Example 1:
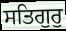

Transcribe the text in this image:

ਸਤਿਗੁਰੁ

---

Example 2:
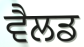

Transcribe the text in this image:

ਵੈਲਡ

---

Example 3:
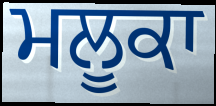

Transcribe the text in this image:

ਮਲੂਕਾ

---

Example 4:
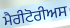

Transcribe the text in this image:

ਮੈਰੀਟੋਰੀਅਸ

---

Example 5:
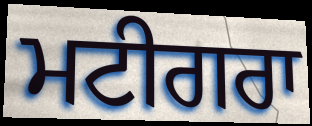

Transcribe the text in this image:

ਮਟੀਗਰਾ